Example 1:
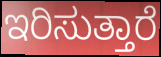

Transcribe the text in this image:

ಇರಿಸುತ್ತಾರೆ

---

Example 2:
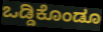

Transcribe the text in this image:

ಒಡ್ಡಿಕೊಂಡೂ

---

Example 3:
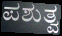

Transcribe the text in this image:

ಪಶುತ್ವ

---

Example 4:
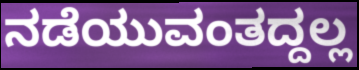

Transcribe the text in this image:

ನಡೆಯುವಂತದ್ದಲ್ಲ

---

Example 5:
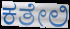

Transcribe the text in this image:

ಕತೇಲಿ